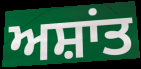
ਅਸ਼ਾਂਤ